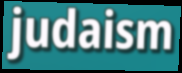
judaism